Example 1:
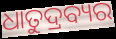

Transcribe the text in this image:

ଧାତୁଦ୍ରବ୍ୟର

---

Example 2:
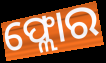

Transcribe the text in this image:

ଫ୍ଲୋର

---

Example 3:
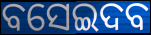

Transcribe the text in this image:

ବସେଇଦବ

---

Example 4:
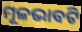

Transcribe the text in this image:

ମୂଳଭାବଟି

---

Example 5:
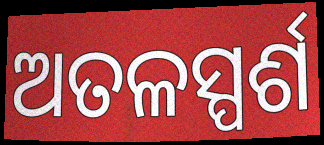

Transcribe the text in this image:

ଅତଳସ୍ପର୍ଶ